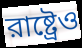
রাষ্ট্রেও